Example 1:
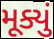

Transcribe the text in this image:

મૂક્યું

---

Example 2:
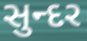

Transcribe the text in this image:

સુન્દર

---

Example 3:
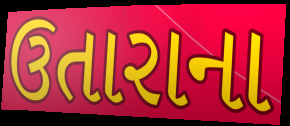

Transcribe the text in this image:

ઉતારાના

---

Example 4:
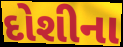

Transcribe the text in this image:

દોશીના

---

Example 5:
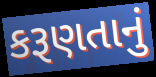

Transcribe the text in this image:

કરૂણતાનું